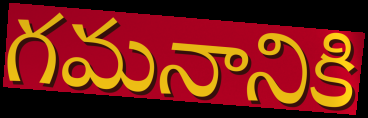
గమనానికి